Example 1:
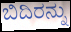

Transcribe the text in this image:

ಬಿದಿರನ್ನು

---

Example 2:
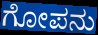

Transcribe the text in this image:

ಗೋಪನು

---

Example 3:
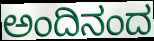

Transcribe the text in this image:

ಅಂದಿನಂದ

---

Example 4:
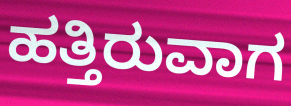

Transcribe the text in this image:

ಹತ್ತಿರುವಾಗ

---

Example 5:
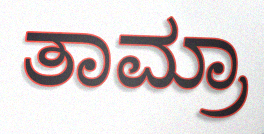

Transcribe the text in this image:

ತಾಮ್ರಾ